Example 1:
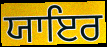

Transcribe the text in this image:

ਯਾਇਰ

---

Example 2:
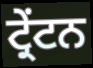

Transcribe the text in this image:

ਟ੍ਰੇਂਟਨ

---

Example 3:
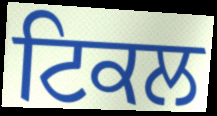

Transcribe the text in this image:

ਟਿਕਲ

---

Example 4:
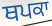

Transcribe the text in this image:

ਥਪਕਾ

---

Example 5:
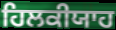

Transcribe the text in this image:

ਹਿਲਕੀਯਾਹ